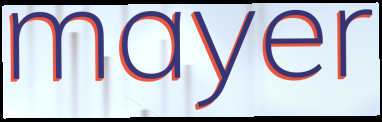
mayer